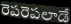
రెపరెపలాడే